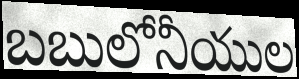
బబులోనీయుల